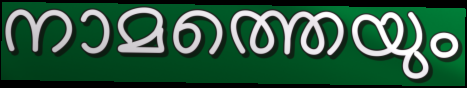
നാമത്തെയും